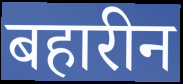
बहारीन